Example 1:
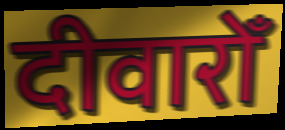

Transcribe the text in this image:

दीवारोँ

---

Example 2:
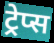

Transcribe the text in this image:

ट्रेप्स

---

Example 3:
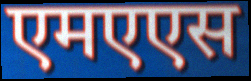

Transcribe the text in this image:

एमएएस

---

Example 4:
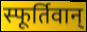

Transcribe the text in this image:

स्फूर्तिवान्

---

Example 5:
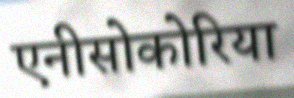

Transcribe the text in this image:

एनीसोकोरिया